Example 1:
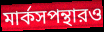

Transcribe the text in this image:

মার্কসপন্থারও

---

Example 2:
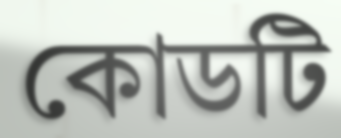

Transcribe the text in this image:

কোডটি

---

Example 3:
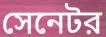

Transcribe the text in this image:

সেনেটর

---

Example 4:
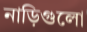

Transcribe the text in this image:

নাড়িগুলো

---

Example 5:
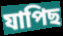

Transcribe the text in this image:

যাপিছ